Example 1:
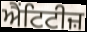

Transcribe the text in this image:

ਐਂਟਿਟੀਜ਼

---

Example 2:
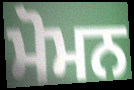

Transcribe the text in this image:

ਮੋਮਨ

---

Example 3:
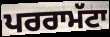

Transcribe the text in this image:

ਪਰਰਾਮੱਟਾ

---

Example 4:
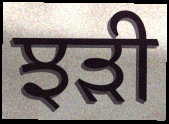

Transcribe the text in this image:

ਝੜੀ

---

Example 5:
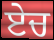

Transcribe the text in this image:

ਏਚ